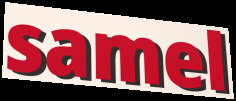
samel